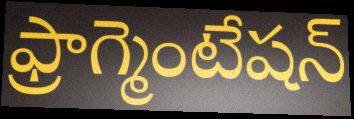
ఫ్రాగ్మెంటేషన్